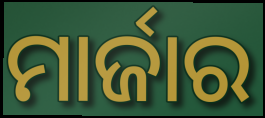
ମାର୍ଜାର